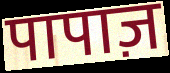
पापाज़